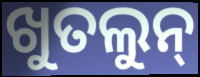
ଖୁତଲୁନ୍